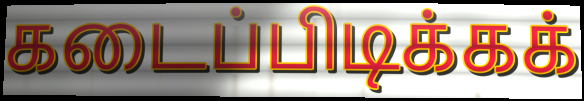
கடைப்பிடிக்கக்